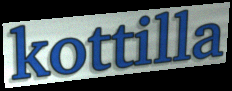
kottilla